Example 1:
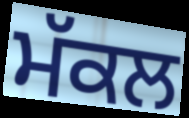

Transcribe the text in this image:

ਮੱਕਲ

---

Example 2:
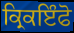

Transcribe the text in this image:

ਕ੍ਰਿਕਇੰਫੋ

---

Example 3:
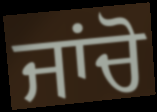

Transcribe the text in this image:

ਜਾਂਚੋ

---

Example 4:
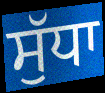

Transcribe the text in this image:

ਸੁੱਧਾ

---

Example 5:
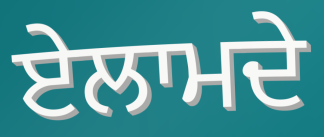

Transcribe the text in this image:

ਏਲਾਮਦੇ